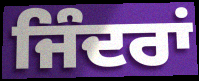
ਜਿੰਦਰਾਂ